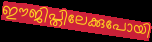
ഈജിപ്തിലേക്കുപോയി